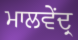
ਮਾਲਵੇਂਦ੍ਰ